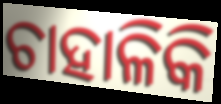
ଚାହାଳିକି